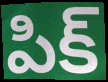
పిక్